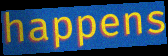
happens